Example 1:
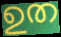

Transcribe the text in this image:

ഉത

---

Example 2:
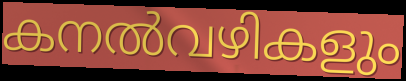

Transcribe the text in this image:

കനൽവഴികളും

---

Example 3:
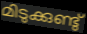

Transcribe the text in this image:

മിടുക്കുണ്ടു്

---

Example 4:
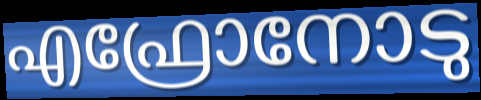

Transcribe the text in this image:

എഫ്രോനോടു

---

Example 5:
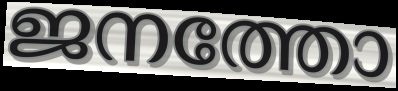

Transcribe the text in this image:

ജനത്തോ